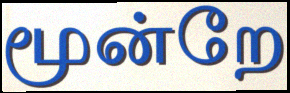
மூன்றே